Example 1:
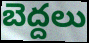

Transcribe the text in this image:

బెద్దలు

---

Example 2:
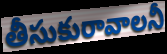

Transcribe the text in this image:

తీసుకురావాలనీ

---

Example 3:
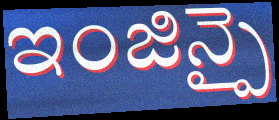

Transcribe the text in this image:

ఇంజిన్పై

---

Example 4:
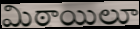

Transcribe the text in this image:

మిఠాయిలూ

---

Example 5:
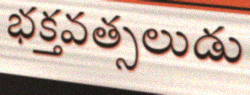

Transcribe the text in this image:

భక్తవత్సలుడు